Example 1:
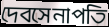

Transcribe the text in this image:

দেবসেনাপতি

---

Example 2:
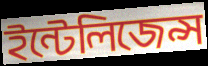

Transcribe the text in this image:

ইন্টেলিজেন্স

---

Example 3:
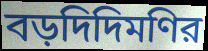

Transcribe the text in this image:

বড়দিদিমণির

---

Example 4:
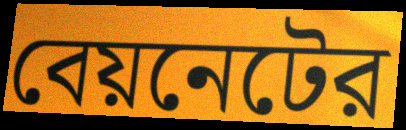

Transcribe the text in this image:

বেয়নেটের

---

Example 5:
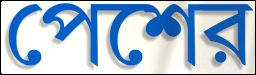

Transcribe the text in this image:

পেশের